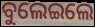
ବୁଲେଇଲେ